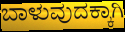
ಬಾಳುವುದಕ್ಕಾಗಿ